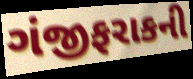
ગંજીફરાકની